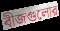
বীজগুলোর